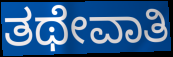
ತಥೇವಾತಿ